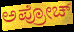
ಅಪ್ರೋಚ್